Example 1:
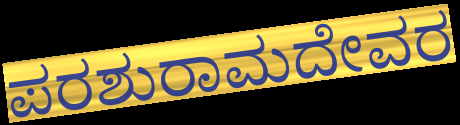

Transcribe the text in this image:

ಪರಶುರಾಮದೇವರ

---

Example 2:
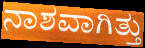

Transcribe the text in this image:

ನಾಶವಾಗಿತ್ತು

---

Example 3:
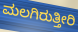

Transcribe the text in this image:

ಮಲಗಿರುತ್ತೀರಿ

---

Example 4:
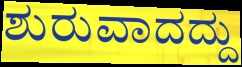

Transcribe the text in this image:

ಶುರುವಾದದ್ದು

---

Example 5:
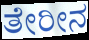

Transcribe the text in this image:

ತೇರೀನ